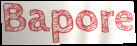
Bapore